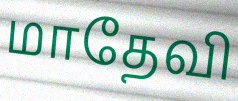
மாதேவி